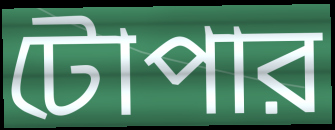
টোপার